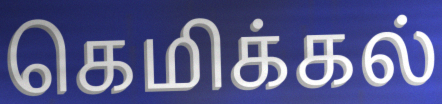
கெமிக்கல்